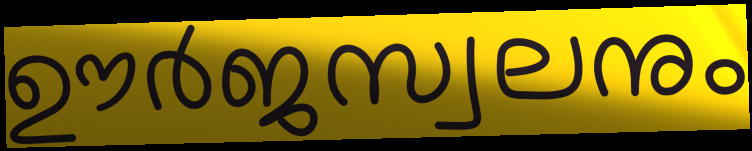
ഊർജസ്വലനും